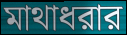
মাথাধরার